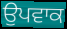
ਉਪਵਾਕ